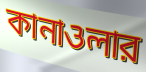
কানাওলার